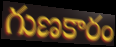
గుణకారం